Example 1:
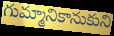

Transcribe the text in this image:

గుమ్మానికానుకుని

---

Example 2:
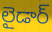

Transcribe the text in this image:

లైడార్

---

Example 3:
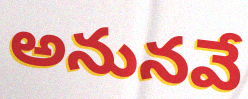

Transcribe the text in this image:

అనునవే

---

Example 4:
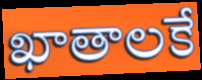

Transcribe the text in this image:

ఖాతాలకే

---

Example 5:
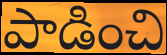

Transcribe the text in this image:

పాడించి